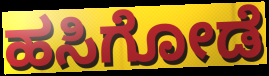
ಹಸಿಗೋಡೆ